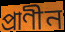
প্রাণীন